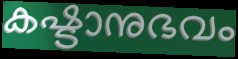
കഷ്ടാനുഭവം